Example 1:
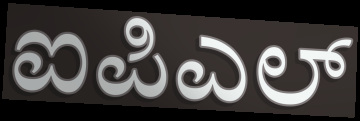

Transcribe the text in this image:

ಐಪಿಎಲ್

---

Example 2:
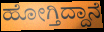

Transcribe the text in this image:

ಹೋಗ್ತಿದ್ದಾನೆ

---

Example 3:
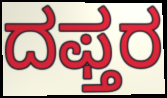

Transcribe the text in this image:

ದಫ್ತರ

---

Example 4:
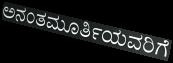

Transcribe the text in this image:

ಅನಂತಮೂರ್ತಿಯವರಿಗೆ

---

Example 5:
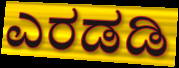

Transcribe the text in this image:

ಎರಡಡಿ